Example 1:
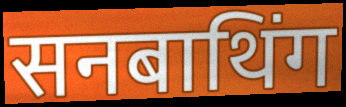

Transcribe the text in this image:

सनबाथिंग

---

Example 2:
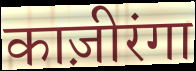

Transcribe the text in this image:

काज़ीरंगा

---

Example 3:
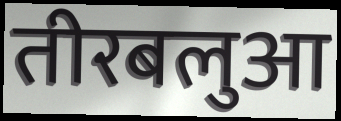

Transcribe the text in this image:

तीरबलुआ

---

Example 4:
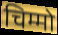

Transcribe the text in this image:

चिम्मो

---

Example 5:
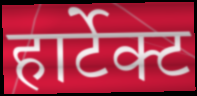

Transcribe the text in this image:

हार्टेक्ट